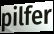
pilfer